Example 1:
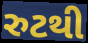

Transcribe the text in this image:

રુટથી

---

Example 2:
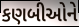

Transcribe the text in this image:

કણબીઓને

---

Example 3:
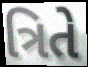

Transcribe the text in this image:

ત્રિતે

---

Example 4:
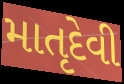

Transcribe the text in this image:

માતૃદેવી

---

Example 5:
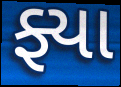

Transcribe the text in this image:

ફ્યા